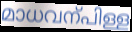
മാധവന്പിള്ള